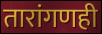
तारांगणही